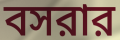
বসরার